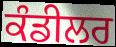
ਕੰਡੀਲਰ